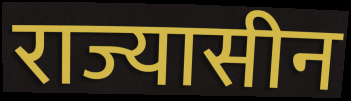
राज्यासीन